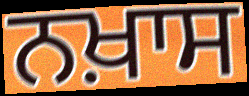
ਨਖ਼ਾਸ